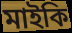
মাইকি